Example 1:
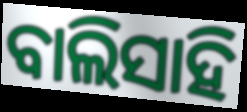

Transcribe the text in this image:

ବାଲିସାହି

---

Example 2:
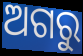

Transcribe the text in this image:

ଅଗରୁ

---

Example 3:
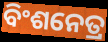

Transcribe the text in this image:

ବିଂଶନେତ୍ର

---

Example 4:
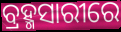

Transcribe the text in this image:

ବ୍ରହ୍ମସାରୀରେ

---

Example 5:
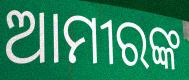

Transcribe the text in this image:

ଆମୀରଙ୍କ